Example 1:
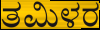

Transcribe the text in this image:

ತಮಿಳರ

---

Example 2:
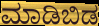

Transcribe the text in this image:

ಮಾಡಿಬಿಡ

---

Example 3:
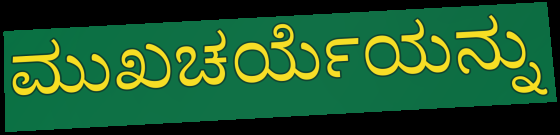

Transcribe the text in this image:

ಮುಖಚರ್ಯೆಯನ್ನು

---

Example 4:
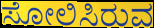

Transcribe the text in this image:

ಸೋಲಿಸಿರುವ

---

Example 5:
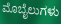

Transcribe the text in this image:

ಮೊಬೈಲುಗಳು